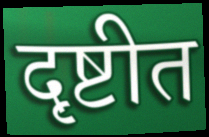
दृष्टीत